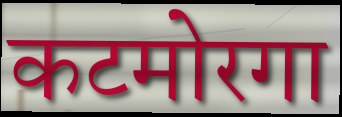
कटमोरगा